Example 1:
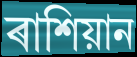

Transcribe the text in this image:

ৰাশিয়ান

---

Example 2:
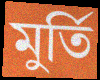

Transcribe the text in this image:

মুৰ্তি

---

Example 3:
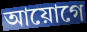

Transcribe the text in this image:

আয়োগে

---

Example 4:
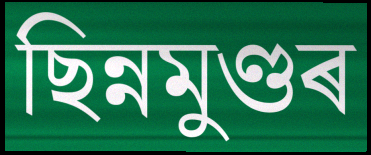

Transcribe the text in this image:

ছিন্নমুণ্ডৰ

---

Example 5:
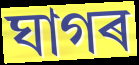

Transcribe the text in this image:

ঘাগৰ